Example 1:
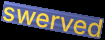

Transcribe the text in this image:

swerved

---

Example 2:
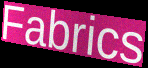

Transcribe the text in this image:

Fabrics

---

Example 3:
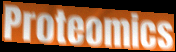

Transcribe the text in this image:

Proteomics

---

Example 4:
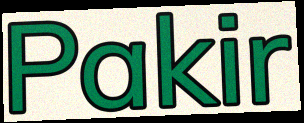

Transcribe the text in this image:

Pakir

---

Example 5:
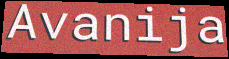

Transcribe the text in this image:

Avanija